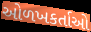
ઓળખકર્તાઓ